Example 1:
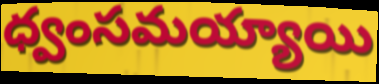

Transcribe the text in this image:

ధ్వంసమయ్యాయి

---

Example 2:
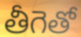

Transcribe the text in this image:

తీగెతో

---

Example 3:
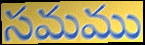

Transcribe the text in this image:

సమము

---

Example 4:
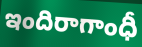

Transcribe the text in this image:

ఇందిరాగాంధీ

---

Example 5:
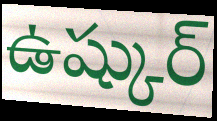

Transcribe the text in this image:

ఉష్కుర్